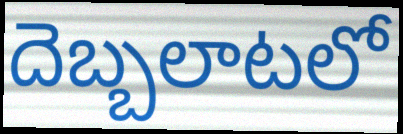
దెబ్బలాటలో